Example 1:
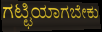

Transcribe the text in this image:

ಗಟ್ಟಿಯಾಗಬೇಕು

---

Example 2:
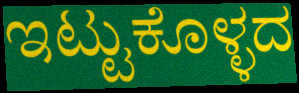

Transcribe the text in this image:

ಇಟ್ಟುಕೊಳ್ಳದ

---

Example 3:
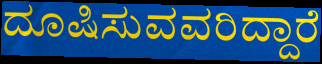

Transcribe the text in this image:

ದೂಷಿಸುವವರಿದ್ದಾರೆ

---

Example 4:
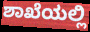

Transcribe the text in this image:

ಶಾಖೆಯಲ್ಲಿ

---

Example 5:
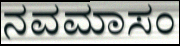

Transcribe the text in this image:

ನವಮಾಸಂ